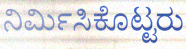
ನಿರ್ಮಿಸಿಕೊಟ್ಟರು